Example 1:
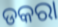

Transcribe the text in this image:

ଡକରା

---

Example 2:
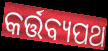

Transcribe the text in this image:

କର୍ତ୍ତବ୍ୟପଥ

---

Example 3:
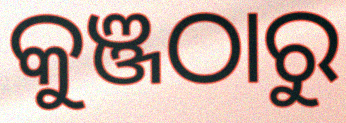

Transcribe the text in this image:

କୁଞ୍ଜଠାରୁ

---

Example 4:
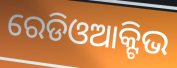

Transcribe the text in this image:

ରେଡିଓଆକ୍ଟିଭ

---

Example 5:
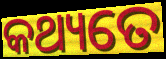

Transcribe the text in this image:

କଥ୍ୟତେ